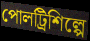
পোলট্রিশিল্পে